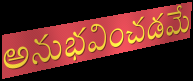
అనుభవించడమే